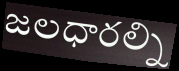
జలధారల్ని